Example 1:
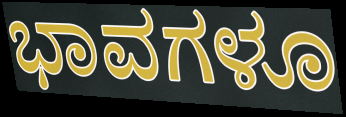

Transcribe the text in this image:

ಭಾವಗಳೂ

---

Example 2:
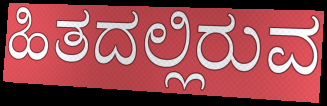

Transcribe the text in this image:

ಹಿತದಲ್ಲಿರುವ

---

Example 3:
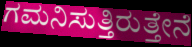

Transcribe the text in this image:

ಗಮನಿಸುತ್ತಿರುತ್ತೇನೆ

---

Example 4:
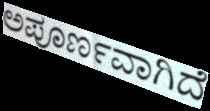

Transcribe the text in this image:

ಅಪೂರ್ಣವಾಗಿದೆ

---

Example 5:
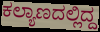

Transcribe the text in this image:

ಕಲ್ಯಾಣದಲ್ಲಿದ್ದ